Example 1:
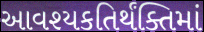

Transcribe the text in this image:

આવશ્યકતિર્થંક્તિમાં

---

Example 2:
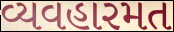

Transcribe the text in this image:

વ્યવહારમત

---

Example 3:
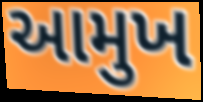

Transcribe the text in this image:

આમુખ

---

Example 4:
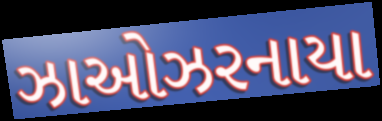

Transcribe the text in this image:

ઝાઓઝરનાયા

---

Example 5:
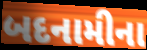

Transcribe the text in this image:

બદનામીના